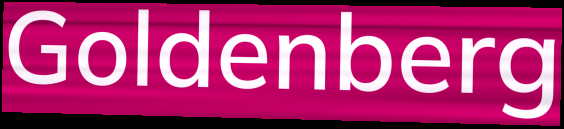
Goldenberg